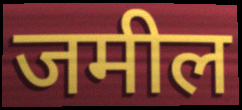
जमील